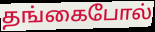
தங்கைபோல்